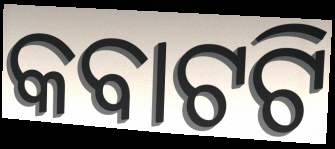
କବାଟଟି